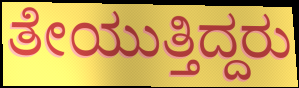
ತೇಯುತ್ತಿದ್ದರು